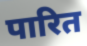
पारित